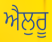
ਐਲੁਰੂ